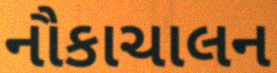
નૌકાચાલન